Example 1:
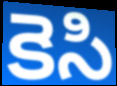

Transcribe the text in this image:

కెసి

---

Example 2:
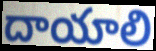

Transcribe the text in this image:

దాయాలి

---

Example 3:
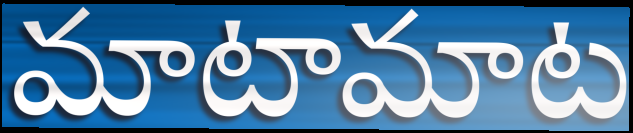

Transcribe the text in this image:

మాటామాట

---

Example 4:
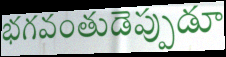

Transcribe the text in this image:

భగవంతుడెప్పుడూ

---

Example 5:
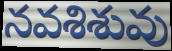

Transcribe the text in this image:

నవశిశువు